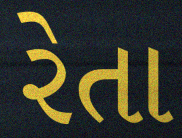
રેતા